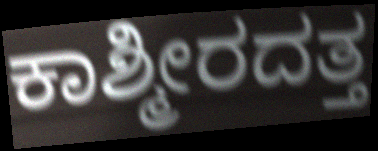
ಕಾಶ್ಮೀರದತ್ತ